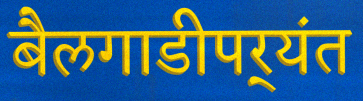
बैलगाडीपर्यंत